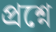
প্রশ্নে